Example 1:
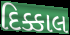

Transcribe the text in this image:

દિક્કાલ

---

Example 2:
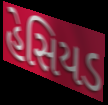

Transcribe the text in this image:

હેસિયડ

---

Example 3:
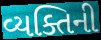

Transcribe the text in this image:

વ્યક્તિની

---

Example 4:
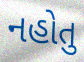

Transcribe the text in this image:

નહોતુ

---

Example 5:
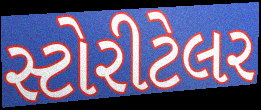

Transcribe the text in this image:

સ્ટોરીટેલર